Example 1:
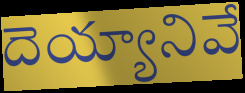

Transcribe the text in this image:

దెయ్యానివే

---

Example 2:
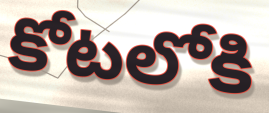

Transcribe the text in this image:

కోటలోకి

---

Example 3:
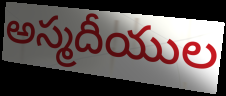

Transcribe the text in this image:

అస్మదీయుల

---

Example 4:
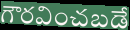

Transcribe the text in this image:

గౌరవించబడే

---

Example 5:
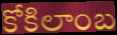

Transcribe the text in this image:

కోకిలాంబ